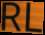
RL